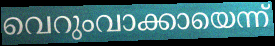
വെറുംവാക്കായെന്ന്